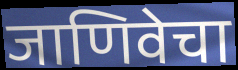
जाणिवेचा